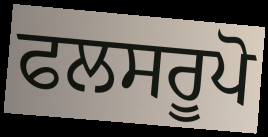
ਫਲਸਰੂਪੋ